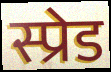
स्‍प्रेड